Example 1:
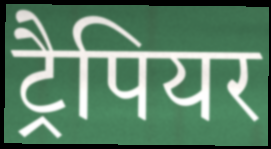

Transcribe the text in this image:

ट्रैपियर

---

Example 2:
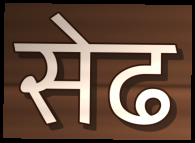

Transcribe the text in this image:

सेढ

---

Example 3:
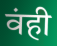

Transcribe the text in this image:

वंही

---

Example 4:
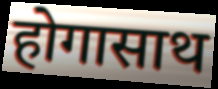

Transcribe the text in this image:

होगासाथ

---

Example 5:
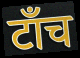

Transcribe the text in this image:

टाँच